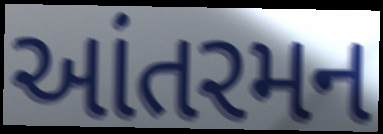
આંતરમન